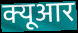
क्यूआर